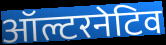
ऑल्टरनेटिव